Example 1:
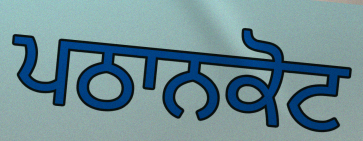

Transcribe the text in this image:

ਪਠਾਨਕੋਟ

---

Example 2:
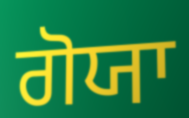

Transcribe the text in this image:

ਗੋਯਾ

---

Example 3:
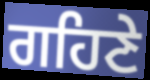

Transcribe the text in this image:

ਗਹਿਣੇ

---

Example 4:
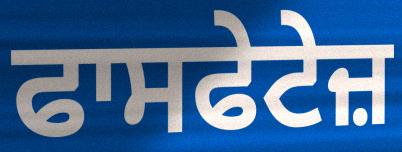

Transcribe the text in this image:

ਫਾਸਫੇਟੇਜ਼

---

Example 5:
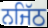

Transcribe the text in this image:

ਨਜਿੱਠ